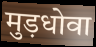
मुड़धोवा